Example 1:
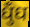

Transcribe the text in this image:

धुँध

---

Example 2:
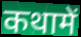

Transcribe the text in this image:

कथामें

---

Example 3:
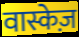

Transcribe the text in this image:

वास्केज़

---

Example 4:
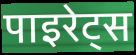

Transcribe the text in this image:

पाइरेट्स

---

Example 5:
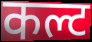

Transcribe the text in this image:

कल्ट